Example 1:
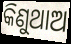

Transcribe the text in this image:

କିଣୁଥାଅ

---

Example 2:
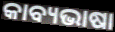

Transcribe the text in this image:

କାବ୍ୟଭାଷା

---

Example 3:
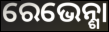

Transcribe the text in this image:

ରେଭେନ୍ଶା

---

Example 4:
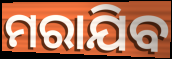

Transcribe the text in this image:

ମରାଯିବ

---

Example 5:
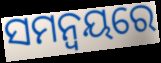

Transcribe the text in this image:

ସମନ୍ବୟରେ